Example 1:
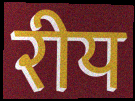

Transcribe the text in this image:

रीय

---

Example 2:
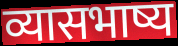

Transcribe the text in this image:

व्यासभाष्य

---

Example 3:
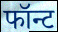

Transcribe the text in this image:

फॉन्ट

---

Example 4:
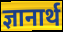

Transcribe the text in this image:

ज्ञानार्थ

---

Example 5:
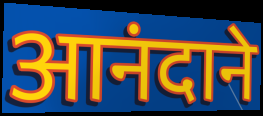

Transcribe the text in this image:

आनंदाने